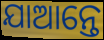
ଯାଆନ୍ତେ